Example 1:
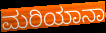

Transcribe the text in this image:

ಮರಿಯಾನಾ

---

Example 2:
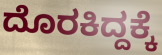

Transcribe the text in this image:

ದೊರಕಿದ್ದಕ್ಕೆ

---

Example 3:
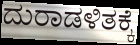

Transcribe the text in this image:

ದುರಾಡಳಿತಕ್ಕೆ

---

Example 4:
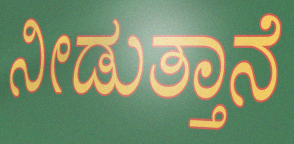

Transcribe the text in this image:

ನೀಡುತ್ತಾನೆ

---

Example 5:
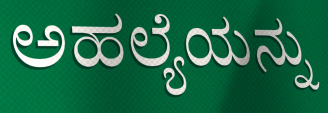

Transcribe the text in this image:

ಅಹಲ್ಯೆಯನ್ನು